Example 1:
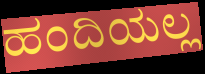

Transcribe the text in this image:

ಹಂದಿಯಲ್ಲ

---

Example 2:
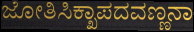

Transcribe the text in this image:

ಜೋತಿಸಿಕ್ಖಾಪದವಣ್ಣನಾ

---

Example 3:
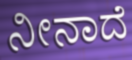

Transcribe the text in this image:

ನೀನಾದೆ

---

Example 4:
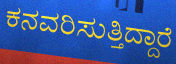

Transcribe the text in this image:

ಕನವರಿಸುತ್ತಿದ್ದಾರೆ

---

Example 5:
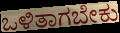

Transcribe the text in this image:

ಒಳಿತಾಗಬೇಕು